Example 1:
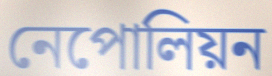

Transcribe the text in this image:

নেপোলিয়ন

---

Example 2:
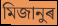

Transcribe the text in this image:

মিজানুৰ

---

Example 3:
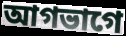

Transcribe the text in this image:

আগভাগে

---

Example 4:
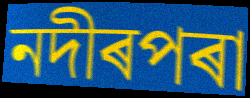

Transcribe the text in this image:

নদীৰপৰা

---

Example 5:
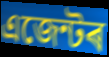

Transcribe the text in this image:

এজেন্টৰ